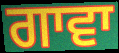
ਗਾਵਾ